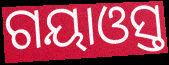
ଗୟାଓସ୍ତ